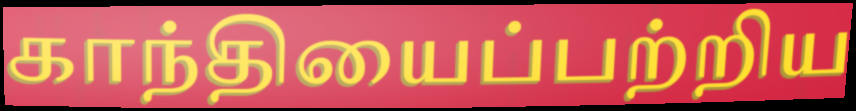
காந்தியைப்பற்றிய